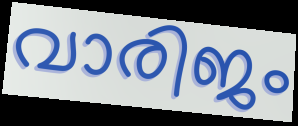
വാരിജം